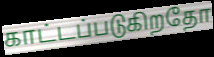
காட்டப்படுகிறதோ